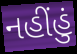
નહીંહું